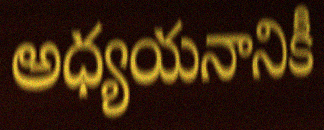
అధ్యయనానికీ